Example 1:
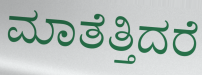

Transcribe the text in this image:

ಮಾತೆತ್ತಿದರೆ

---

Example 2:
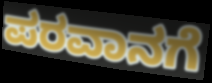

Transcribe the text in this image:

ಪರವಾನಗೆ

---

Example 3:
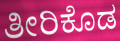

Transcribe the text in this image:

ತೀರಿಕೊಡ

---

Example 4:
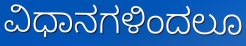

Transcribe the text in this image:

ವಿಧಾನಗಳಿಂದಲೂ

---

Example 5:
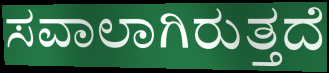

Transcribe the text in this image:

ಸವಾಲಾಗಿರುತ್ತದೆ